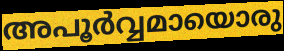
അപൂർവ്വമായൊരു